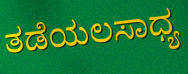
ತಡೆಯಲಸಾಧ್ಯ